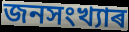
জনসংখ্যাৰ